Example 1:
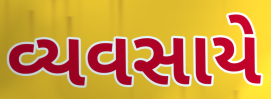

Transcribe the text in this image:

વ્યવસાયે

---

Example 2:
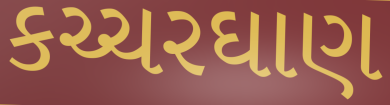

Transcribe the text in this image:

કચ્ચરઘાણ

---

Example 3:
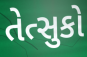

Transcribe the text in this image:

તેત્સુકો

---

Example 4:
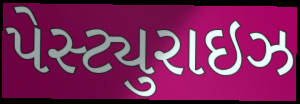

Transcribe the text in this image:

પેસ્ટ્યુરાઇઝ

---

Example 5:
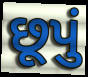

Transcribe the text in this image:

છૂપું